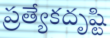
ప్రత్యేకదృష్టి